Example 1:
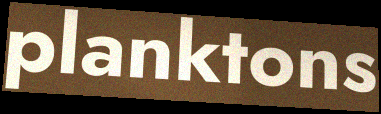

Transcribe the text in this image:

planktons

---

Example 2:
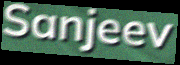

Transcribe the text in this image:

Sanjeev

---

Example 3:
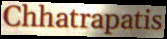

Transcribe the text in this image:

Chhatrapatis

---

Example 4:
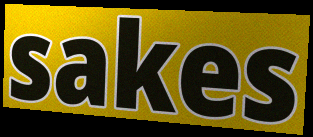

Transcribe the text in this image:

sakes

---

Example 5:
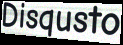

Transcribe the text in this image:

Disqusto